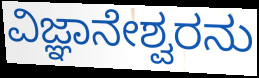
ವಿಜ್ಞಾನೇಶ್ವರನು